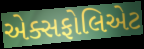
એક્સફોલિએટ